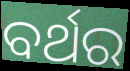
ବର୍ଥର